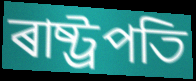
ৰাষ্ট্ৰপতি